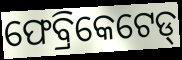
ଫେବ୍ରିକେଟେଡ୍